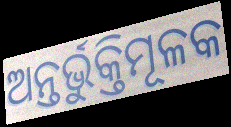
ଅନ୍ତର୍ଭୁକ୍ତିମୂଳକ